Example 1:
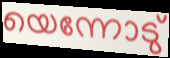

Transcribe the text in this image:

യെന്നോടു്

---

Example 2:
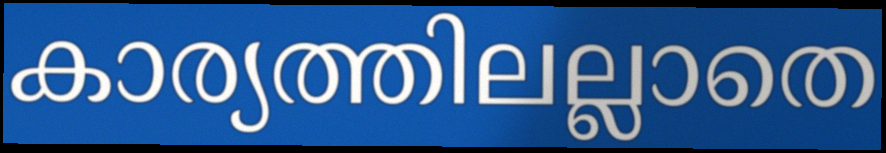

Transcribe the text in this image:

കാര്യത്തിലല്ലാതെ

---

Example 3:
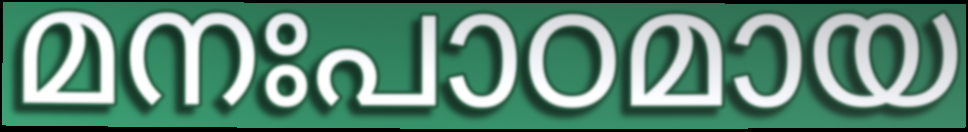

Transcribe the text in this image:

മനഃപാഠമായ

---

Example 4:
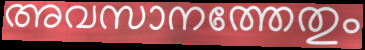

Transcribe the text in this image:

അവസാനത്തേതും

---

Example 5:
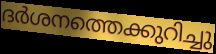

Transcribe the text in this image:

ദർശനത്തെക്കുറിച്ചു